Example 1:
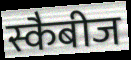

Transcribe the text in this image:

स्कैबीज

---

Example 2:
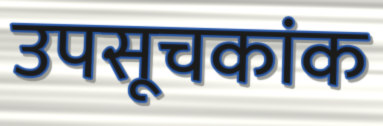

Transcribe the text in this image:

उपसूचकांक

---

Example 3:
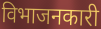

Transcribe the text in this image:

विभाजनकारी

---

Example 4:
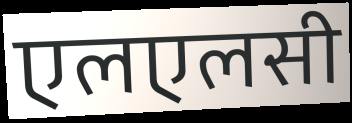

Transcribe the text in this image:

एलएलसी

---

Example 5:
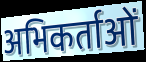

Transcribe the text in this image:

अभिकर्ताओं